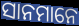
ସାନମାନେ